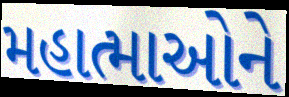
મહાત્માઓને